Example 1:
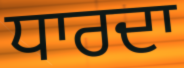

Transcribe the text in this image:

ਧਾਰਦਾ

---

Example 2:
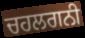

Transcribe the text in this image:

ਚਹਲਗਨੀ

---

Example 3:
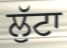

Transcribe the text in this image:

ਲੁੱਟਾ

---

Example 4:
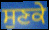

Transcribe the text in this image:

ਸੁਣਕੇ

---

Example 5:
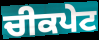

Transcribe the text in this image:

ਚੀਕਪੇਟ